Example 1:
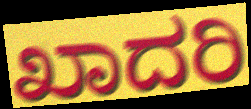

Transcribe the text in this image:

ಖಾದರಿ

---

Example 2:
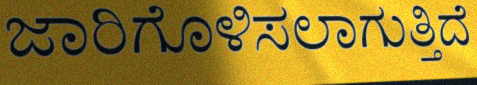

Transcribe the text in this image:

ಜಾರಿಗೊಳಿಸಲಾಗುತ್ತಿದೆ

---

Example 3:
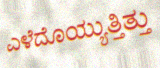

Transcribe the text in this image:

ಎಳೆದೊಯ್ಯುತ್ತಿತ್ತು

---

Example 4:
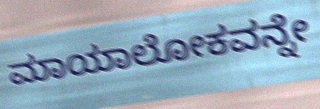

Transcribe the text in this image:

ಮಾಯಾಲೋಕವನ್ನೇ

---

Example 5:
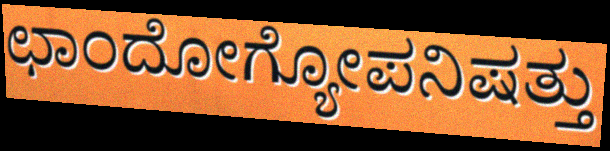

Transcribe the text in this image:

ಛಾಂದೋಗ್ಯೋಪನಿಷತ್ತು